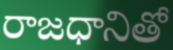
రాజధానితో